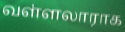
வள்ளலாராக